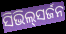
ସିଭିଲ୍‌ସର୍ଜନ